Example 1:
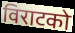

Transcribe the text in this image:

विराटको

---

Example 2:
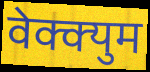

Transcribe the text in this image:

वेक्क्युम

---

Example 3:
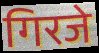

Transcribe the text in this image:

गिरजे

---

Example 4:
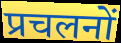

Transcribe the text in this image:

प्रचलनों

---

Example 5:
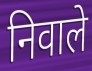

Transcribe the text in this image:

निवाले